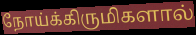
நோய்க்கிருமிகளால்